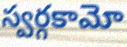
స్వర్గకామో